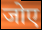
जोए